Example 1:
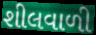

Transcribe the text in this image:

શીલવાળી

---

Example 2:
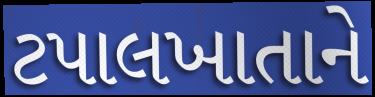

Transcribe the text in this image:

ટપાલખાતાને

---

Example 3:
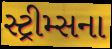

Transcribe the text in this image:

સ્ટ્રીમ્સના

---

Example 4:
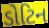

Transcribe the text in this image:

ડોટિન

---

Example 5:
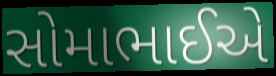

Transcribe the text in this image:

સોમાભાઈએ